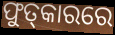
ଫୁତ୍‌କାରରେ